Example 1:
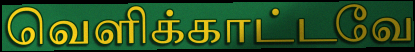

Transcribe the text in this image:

வெளிக்காட்டவே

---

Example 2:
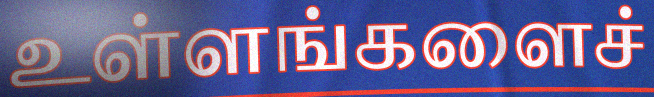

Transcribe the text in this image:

உள்ளங்களைச்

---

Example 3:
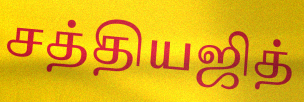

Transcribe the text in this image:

சத்தியஜித்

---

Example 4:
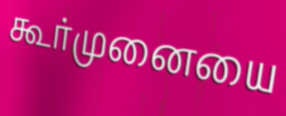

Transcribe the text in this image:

கூர்முனையை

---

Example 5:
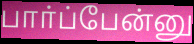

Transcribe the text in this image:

பார்ப்பேன்னு